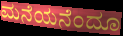
ಮನೆಯನೆಂದೂ